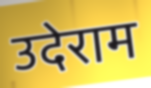
उदेराम